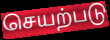
செயற்படு